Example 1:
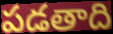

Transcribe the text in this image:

పడతాది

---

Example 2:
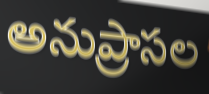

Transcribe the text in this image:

అనుప్రాసల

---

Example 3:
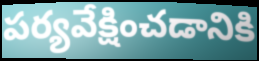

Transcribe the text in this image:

పర్యవేక్షించడానికి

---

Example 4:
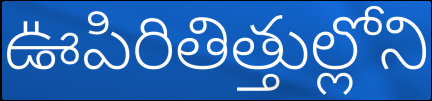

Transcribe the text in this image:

ఊపిరితిత్తుల్లోని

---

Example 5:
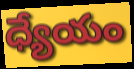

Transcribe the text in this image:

ధ్యేయం